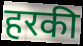
हरकी